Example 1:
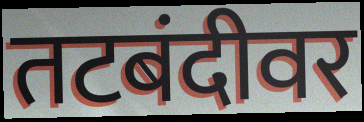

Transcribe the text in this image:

तटबंदीवर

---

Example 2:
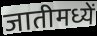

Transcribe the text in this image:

जातीमध्यें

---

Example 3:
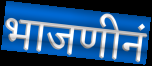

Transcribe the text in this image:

भाजणीनं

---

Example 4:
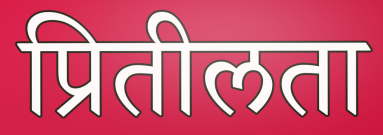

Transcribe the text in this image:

प्रितीलता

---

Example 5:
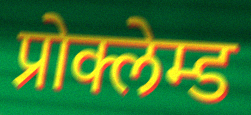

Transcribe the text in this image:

प्रोक्लेम्ड